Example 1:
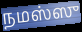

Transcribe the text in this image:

நமஸ்ஸு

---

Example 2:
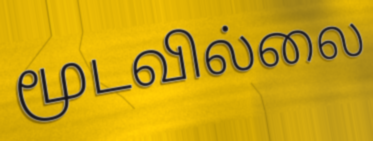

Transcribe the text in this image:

மூடவில்லை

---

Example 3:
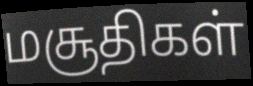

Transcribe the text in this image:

மசூதிகள்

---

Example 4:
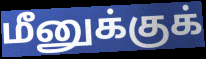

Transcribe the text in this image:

மீனுக்குக்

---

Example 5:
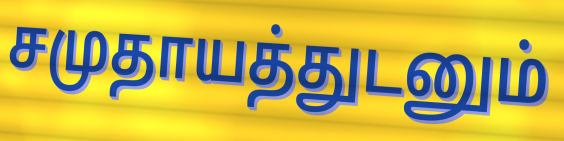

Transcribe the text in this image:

சமுதாயத்துடனும்